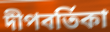
দীপবর্তিকা